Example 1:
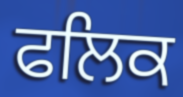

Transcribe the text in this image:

ਫਲਿਕ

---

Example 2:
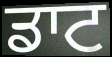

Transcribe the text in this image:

ਡਾਟ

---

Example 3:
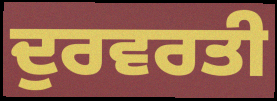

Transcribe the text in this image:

ਦੁਰਵਰਤੀ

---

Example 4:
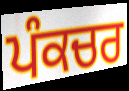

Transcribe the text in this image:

ਪੰਕਚਰ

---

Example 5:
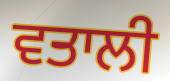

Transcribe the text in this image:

ਵਤਾਲੀ